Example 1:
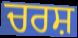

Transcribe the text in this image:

ਚਰਸ਼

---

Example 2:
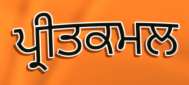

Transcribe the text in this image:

ਪ੍ਰੀਤਕਮਲ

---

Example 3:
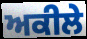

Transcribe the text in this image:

ਅਕੀਲੇ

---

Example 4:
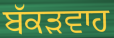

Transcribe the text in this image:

ਬੱਕੜਵਾਹ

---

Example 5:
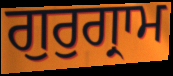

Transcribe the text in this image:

ਗੁਰੁਗ੍ਰਾਮ